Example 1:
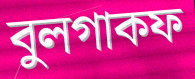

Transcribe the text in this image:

বুলগাকফ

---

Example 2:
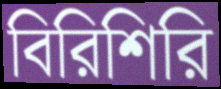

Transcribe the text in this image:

বিরিশিরি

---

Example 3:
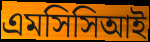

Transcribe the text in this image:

এমসিসিআই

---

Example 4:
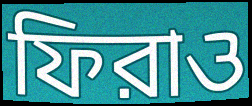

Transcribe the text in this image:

ফিরাও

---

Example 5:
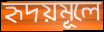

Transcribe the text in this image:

হৃদয়মূলে